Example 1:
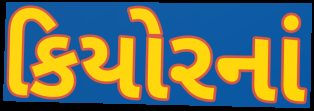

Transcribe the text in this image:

કિયોરનાં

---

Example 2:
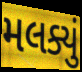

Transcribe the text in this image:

મલક્યું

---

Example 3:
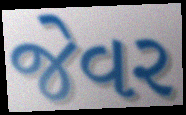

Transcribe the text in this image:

જેવર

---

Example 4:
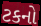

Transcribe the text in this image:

ટકનો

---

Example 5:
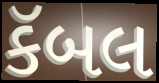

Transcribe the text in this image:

કૅબલ